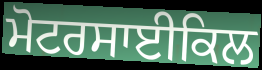
ਮੋਟਰਸਾਈਕਿਲ